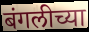
बंगलीच्या